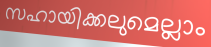
സഹായിക്കലുമെല്ലാം